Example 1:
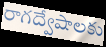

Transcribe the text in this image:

రాగద్వేషాలకు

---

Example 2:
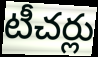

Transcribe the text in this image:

టీచర్లు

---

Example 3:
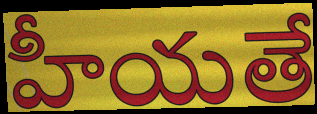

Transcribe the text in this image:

హీయతే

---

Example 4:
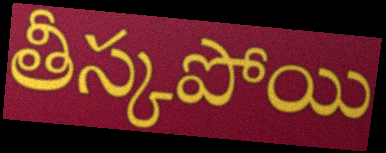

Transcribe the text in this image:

తీస్కపోయి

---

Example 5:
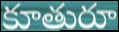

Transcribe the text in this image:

కూతురూ